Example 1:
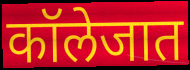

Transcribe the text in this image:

कॉलेजात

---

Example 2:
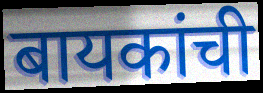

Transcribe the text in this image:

बायकांची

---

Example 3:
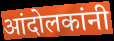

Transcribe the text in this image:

आंदोलकांनी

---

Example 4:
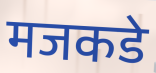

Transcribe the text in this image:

मजकडे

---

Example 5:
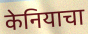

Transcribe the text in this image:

केनियाचा